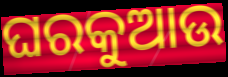
ଘରକୁଆଉ